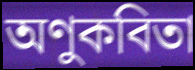
অণুকবিতা